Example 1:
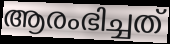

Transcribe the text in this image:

ആരംഭിച്ചത്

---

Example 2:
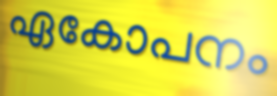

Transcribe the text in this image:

ഏകോപനം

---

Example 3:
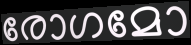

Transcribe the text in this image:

രോഗമോ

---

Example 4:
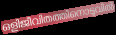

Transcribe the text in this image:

ഒളിജീവിതത്തിനൊടുവിൽ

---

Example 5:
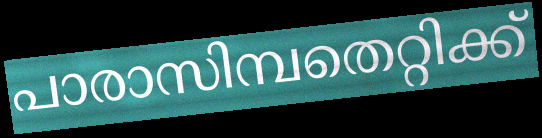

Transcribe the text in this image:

പാരാസിമ്പതെറ്റിക്ക്